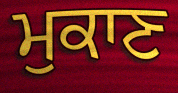
ਮੁਕਾਣ